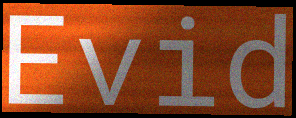
Evid